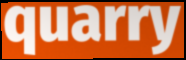
quarry